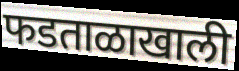
फडताळाखाली